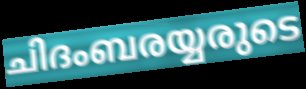
ചിദംബരയ്യരുടെ